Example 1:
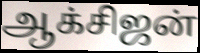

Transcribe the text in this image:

ஆக்சிஜன்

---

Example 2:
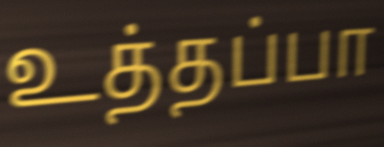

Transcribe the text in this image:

உத்தப்பா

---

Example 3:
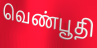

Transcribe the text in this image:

வெண்பூதி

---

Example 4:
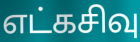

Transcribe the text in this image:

எட்கசிவு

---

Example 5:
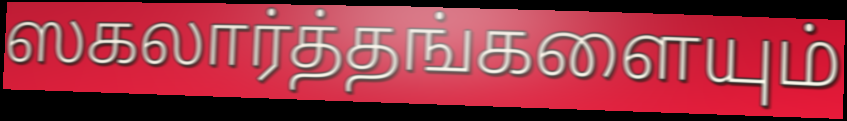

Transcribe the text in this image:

ஸகலார்த்தங்களையும்